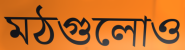
মঠগুলোও